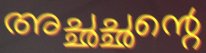
അച്ഛച്ഛന്റെ